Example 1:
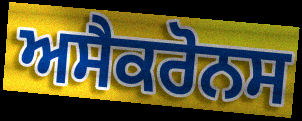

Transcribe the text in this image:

ਅਸੈਕਰੋਨਸ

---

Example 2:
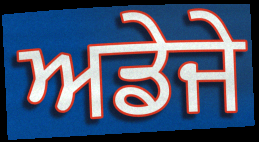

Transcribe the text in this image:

ਅਡੇਜੇ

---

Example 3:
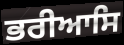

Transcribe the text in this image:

ਭਰੀਆਸਿ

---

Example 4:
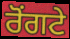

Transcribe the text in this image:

ਰੋੰਗਟੇ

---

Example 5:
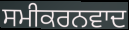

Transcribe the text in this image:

ਸਮੀਕਰਨਵਾਦ